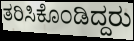
ತರಿಸಿಕೊಂಡಿದ್ದರು